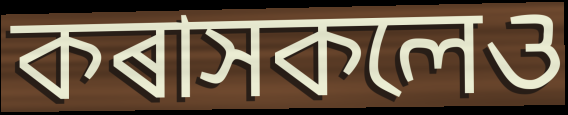
কৰাসকলেও